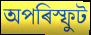
অপৰিস্ফুট